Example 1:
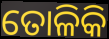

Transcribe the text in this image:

ତୋଳିକି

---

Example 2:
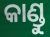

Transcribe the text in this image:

କାଣ୍ଡୁ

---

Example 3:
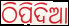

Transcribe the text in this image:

ଠିପିଦିଆ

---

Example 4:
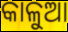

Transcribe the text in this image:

କାଳୁଆ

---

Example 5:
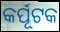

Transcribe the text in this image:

କର୍ପୂଟକ